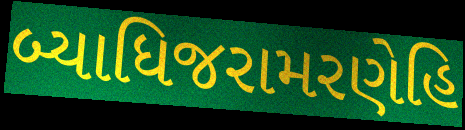
બ્યાધિજરામરણેહિ